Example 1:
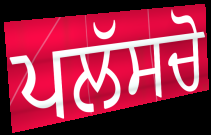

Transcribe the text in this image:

ਪਲੱਸਚੋ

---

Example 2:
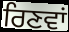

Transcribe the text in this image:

ਰਿਣਵਾਂ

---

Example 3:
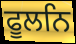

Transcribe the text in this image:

ਫੂਲਨਿ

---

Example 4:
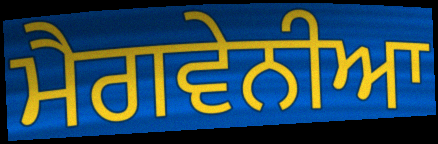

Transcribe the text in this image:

ਮੈਗਵੇਨੀਆ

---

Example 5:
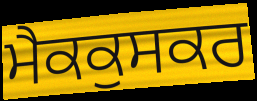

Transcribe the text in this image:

ਮੈਕਕੁਸਕਰ